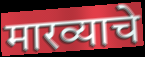
मारव्याचे